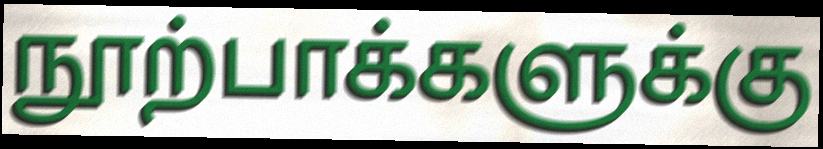
நூற்பாக்களுக்கு